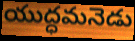
యుద్ధమనెడు